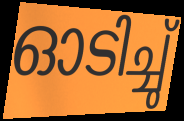
ഓടിച്ചു്